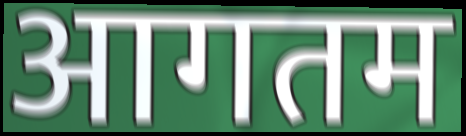
आगतम